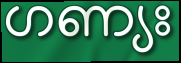
ഗണ്യഃ